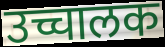
उच्चालक